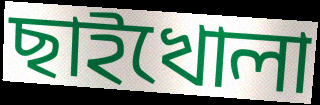
ছাইখোলা